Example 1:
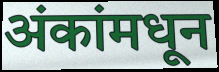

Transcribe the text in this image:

अंकांमधून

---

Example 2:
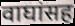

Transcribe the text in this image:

वाघांसह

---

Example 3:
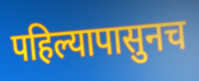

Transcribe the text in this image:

पहिल्यापासुनच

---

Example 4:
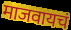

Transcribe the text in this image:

माजवायचं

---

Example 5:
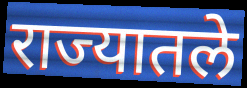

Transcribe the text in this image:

राज्यातले